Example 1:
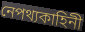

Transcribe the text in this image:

নেপথ্যকাহিনী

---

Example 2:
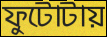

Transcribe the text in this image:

ফুটোটায়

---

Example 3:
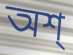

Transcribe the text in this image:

অশ্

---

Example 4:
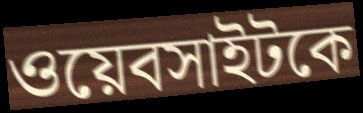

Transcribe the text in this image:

ওয়েবসাইটকে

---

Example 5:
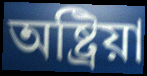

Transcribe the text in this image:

অষ্ট্রিয়া